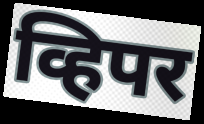
व्हिपर